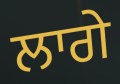
ਲਾਗੇ